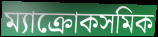
ম্যাক্রোকসমিক